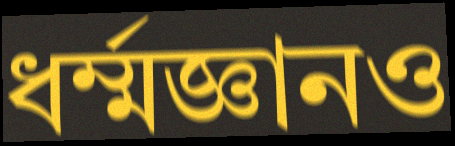
ধর্ম্মজ্ঞানও